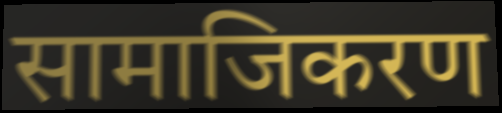
सामाजिकरण